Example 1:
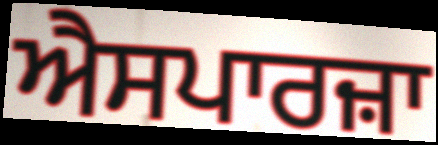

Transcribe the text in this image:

ਐਸਪਾਰਜ਼ਾ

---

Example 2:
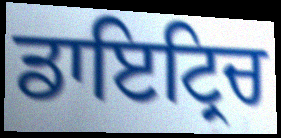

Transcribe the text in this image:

ਡਾਇਟ੍ਰਿਚ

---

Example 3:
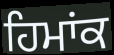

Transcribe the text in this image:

ਹਿਮਾਂਕ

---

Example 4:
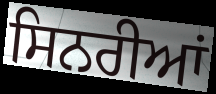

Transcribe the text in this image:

ਸਿਨਰੀਆਂ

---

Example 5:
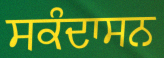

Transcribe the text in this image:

ਸਕੰਦਾਸਨ